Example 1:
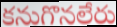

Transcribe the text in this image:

కనుగొనలేరు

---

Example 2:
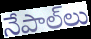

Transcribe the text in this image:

నేపాల్‌లు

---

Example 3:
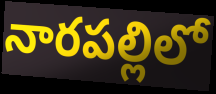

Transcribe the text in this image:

నారపల్లిలో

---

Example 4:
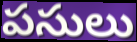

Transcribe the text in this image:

పసులు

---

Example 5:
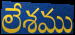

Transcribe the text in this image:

లేశము